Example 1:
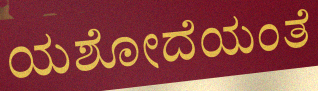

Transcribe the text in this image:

ಯಶೋದೆಯಂತೆ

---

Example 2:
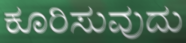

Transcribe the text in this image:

ಕೂರಿಸುವುದು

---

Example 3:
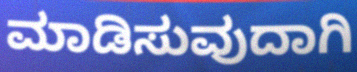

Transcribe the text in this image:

ಮಾಡಿಸುವುದಾಗಿ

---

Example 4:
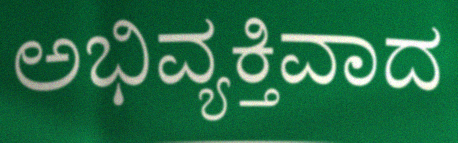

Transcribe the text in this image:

ಅಭಿವ್ಯಕ್ತಿವಾದ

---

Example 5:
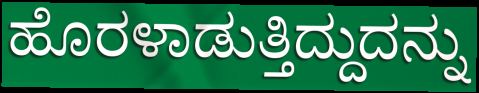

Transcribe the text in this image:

ಹೊರಳಾಡುತ್ತಿದ್ದುದನ್ನು